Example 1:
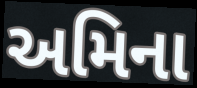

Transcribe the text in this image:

અમિના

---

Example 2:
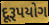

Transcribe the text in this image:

દૂરૂપયોગ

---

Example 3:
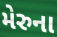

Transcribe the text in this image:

મેરુના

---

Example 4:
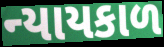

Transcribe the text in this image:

ન્યાયકાળ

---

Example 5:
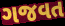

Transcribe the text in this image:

ગજવત